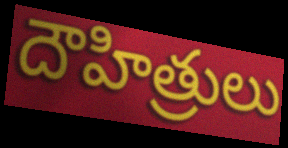
దౌహిత్రులు